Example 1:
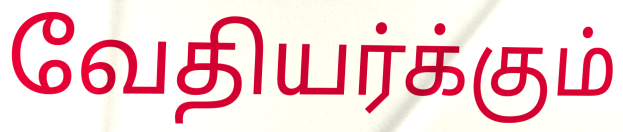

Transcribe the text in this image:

வேதியர்க்கும்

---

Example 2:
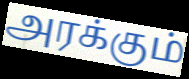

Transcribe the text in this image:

அரக்கும்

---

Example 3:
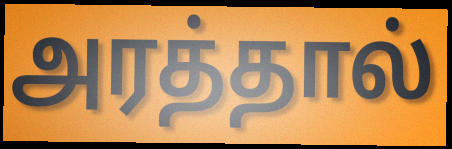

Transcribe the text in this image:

அரத்தால்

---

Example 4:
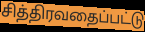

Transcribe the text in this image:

சித்திரவதைப்பட்டு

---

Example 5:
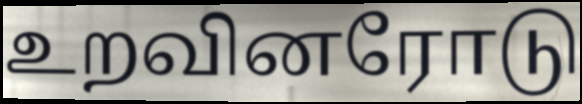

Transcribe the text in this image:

உறவினரோடு